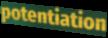
potentiation